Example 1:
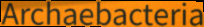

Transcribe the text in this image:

Archaebacteria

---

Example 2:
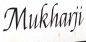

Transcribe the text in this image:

Mukharji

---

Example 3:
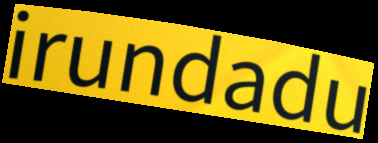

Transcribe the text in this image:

irundadu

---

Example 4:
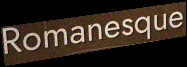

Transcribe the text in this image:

Romanesque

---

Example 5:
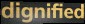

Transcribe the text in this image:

dignified